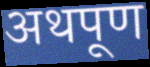
अथपूण